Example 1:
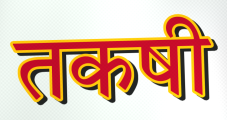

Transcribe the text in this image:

तकषी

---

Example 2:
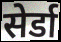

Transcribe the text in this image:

सेर्डा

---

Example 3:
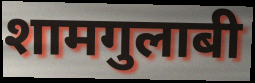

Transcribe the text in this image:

शामगुलाबी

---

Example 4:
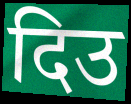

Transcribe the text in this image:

दिउ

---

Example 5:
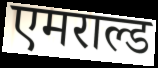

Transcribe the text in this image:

एमराल्ड